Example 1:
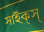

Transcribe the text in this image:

সাইক্‌স্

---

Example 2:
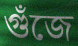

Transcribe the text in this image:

গুঁজে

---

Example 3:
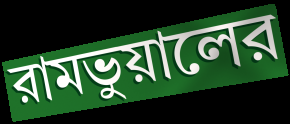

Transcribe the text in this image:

রামভুয়ালের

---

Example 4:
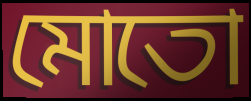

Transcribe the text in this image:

মোতো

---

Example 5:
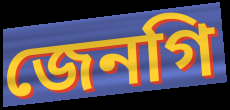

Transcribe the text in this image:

জেনগি